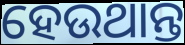
ହେଉଥାନ୍ତ